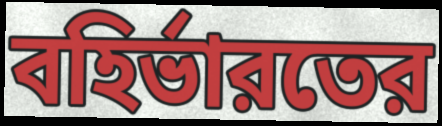
বহির্ভারতের